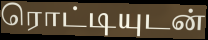
ரொட்டியுடன்